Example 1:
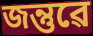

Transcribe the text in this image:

জন্তুৱে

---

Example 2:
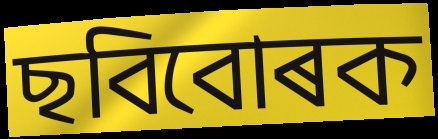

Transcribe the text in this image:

ছবিবোৰক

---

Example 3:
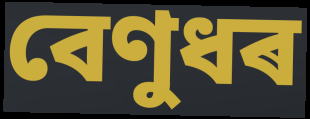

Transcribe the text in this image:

বেণুধৰ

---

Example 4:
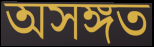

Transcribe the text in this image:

অসঙ্গত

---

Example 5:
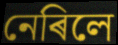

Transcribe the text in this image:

নেৰিলে